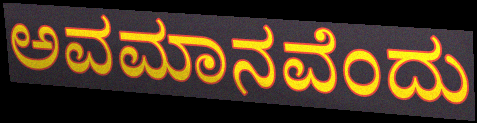
ಅವಮಾನವೆಂದು